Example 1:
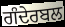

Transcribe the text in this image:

ਗੰਦੇਰਬਲ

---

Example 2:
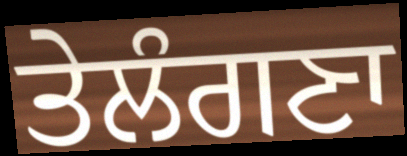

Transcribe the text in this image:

ਤੇਲੰਗਣਾ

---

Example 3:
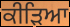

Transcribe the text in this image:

ਕੀੜਿਆ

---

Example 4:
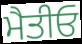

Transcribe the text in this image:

ਮੈਤੀਓ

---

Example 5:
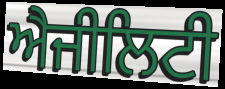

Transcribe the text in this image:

ਐਜੀਲਿਟੀ